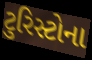
ટુરિસ્ટોના